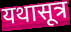
यथासूत्र